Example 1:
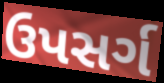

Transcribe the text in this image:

ઉપસર્ગ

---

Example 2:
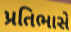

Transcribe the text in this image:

પ્રતિભાસે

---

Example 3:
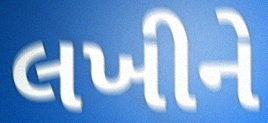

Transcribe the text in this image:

લખીને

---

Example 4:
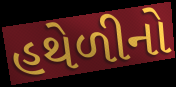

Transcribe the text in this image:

હથેળીનો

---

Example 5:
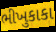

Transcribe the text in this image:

ભીખુકાકા